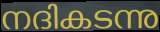
നദികടന്നു